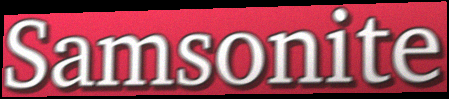
Samsonite